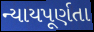
ન્યાયપૂર્ણતા